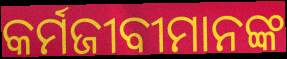
କର୍ମଜୀବୀମାନଙ୍କ